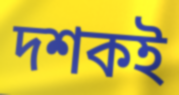
দশকই